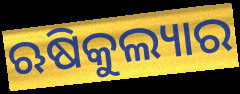
ଋଷିକୁଲ୍ୟାର